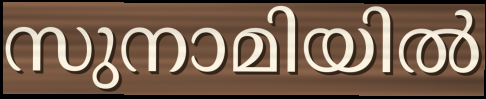
സുനാമിയിൽ